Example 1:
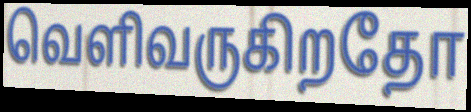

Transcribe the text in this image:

வெளிவருகிறதோ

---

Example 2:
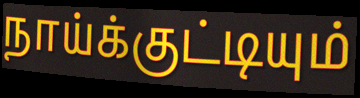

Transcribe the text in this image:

நாய்க்குட்டியும்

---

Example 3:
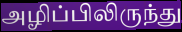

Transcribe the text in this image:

அழிப்பிலிருந்து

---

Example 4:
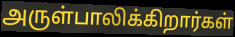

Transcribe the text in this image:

அருள்பாலிக்கிறார்கள்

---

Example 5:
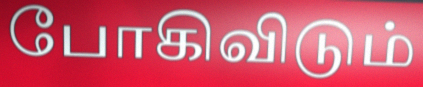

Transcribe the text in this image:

போகிவிடும்